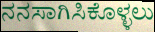
ನನಸಾಗಿಸಿಕೊಳ್ಳಲು